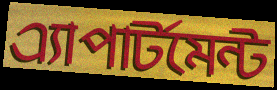
এ্যাপার্টমেন্ট